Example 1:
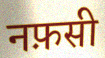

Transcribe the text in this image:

नफ़सी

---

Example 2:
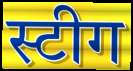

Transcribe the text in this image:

स्टीग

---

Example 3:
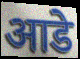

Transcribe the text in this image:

आडे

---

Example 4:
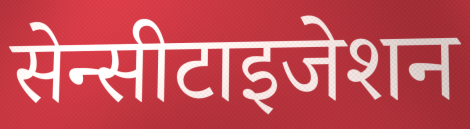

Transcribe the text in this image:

सेन्सीटाइजेशन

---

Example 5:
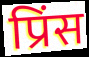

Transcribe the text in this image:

प्रिंस